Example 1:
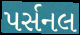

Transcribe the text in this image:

પર્સનલ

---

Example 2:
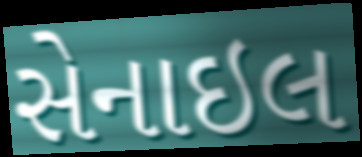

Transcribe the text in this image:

સેનાઇલ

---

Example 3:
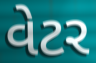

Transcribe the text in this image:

વેટર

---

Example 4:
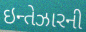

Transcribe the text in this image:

ઇન્તેઝારની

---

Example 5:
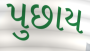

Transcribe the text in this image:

પુછાય